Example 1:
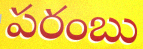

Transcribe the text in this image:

పరంబు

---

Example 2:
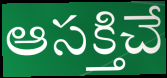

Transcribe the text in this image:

ఆసక్తిచే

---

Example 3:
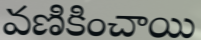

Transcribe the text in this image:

వణికించాయి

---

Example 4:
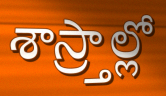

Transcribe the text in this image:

శాస్ర్తాల్లో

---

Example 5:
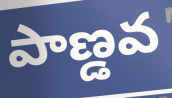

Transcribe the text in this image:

పాణ్డవ